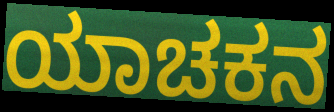
ಯಾಚಕನ